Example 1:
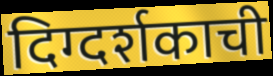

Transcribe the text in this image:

दिग्दर्शकाची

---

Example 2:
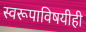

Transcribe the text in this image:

स्वरूपाविषयीही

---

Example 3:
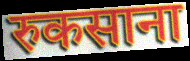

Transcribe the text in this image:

रुकसाना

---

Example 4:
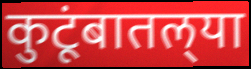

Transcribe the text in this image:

कुटूंबातल्या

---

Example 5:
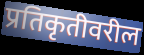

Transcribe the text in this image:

प्रतिकृतीवरील